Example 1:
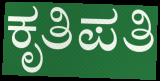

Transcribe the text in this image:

ಕೃತಿಪತಿ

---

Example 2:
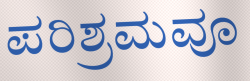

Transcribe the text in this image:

ಪರಿಶ್ರಮವೂ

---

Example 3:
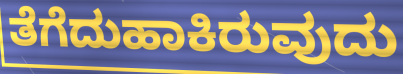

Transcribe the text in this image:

ತೆಗೆದುಹಾಕಿರುವುದು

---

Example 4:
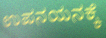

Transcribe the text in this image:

ಉಪನಯನಕ್ಕೆ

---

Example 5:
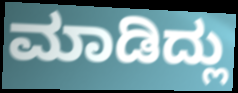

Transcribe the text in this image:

ಮಾಡಿದ್ಲು